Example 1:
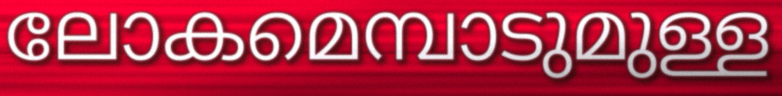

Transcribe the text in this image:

ലോകമെമ്പാടുമുള്ള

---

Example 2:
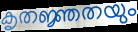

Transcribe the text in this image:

കൃതജ്ഞതയും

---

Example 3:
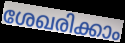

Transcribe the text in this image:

ശേഖരിക്കാം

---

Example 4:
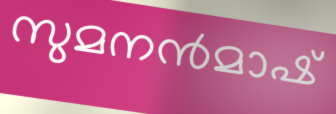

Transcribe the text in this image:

സുമനൻമാഷ്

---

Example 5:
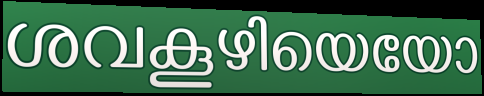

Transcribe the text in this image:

ശവകൂഴിയെയോ